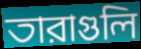
তারাগুলি